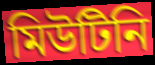
মিউটিনি